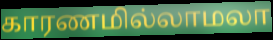
காரணமில்லாமலா